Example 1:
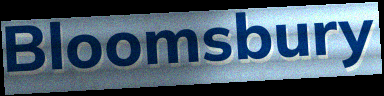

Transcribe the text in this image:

Bloomsbury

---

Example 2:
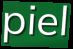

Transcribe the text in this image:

piel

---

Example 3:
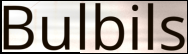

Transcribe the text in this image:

Bulbils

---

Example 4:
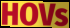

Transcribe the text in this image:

HOVs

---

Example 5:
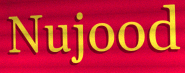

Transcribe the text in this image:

Nujood